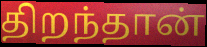
திறந்தான்